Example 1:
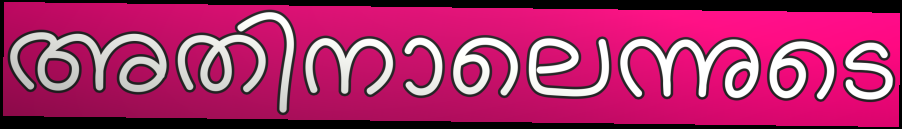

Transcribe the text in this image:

അതിനാലെന്നുടെ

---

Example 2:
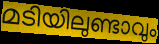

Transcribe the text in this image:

മടിയിലുണ്ടാവും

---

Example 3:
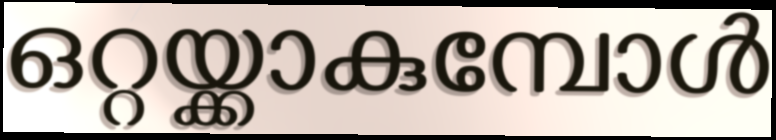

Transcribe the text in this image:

ഒറ്റയ്ക്കാകുമ്പോൾ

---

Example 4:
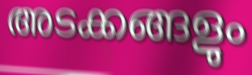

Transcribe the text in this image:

അടക്കങ്ങളും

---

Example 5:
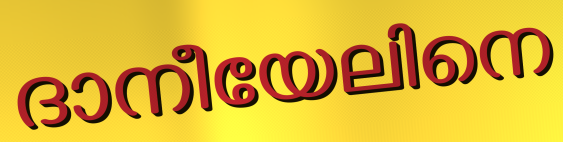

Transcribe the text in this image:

ദാനീയേലിനെ